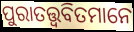
ପୁରାତତ୍ତ୍ୱବିତମାନେ